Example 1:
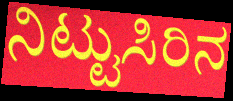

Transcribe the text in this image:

ನಿಟ್ಟುಸಿರಿನ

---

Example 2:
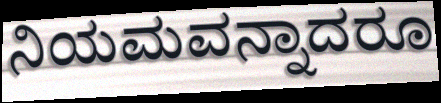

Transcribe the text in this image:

ನಿಯಮವನ್ನಾದರೂ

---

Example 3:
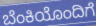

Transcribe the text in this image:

ಬೆಂಕಿಯೊಂದಿಗೆ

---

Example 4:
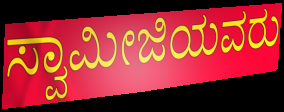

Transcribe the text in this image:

ಸ್ವಾಮೀಜಿಯವರು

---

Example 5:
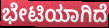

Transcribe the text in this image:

ಭೇಟಿಯಾಗಿದೆ